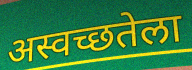
अस्वच्छतेला